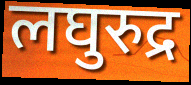
लघुरुद्र